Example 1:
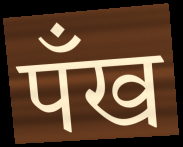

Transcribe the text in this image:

पँख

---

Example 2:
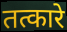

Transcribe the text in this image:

तत्कारे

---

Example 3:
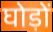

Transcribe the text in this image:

घोड़ों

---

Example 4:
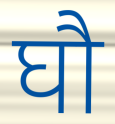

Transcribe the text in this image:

घौ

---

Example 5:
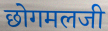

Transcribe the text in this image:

छोगमलजी